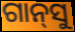
ଗାନ୍‍ସୁ